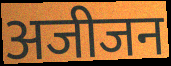
अजीजन